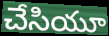
చేసియూ